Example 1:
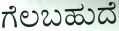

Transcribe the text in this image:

ಗೆಲಬಹುದೆ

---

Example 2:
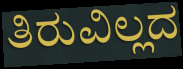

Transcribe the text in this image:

ತಿರುವಿಲ್ಲದ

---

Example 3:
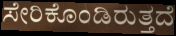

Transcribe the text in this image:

ಸೇರಿಕೊಂಡಿರುತ್ತದೆ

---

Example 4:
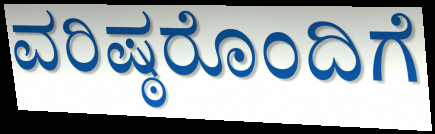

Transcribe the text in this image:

ವರಿಷ್ಠರೊಂದಿಗೆ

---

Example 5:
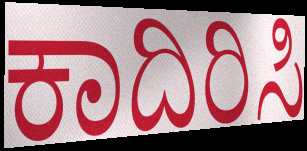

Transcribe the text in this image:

ಕಾದಿರಿಸಿ